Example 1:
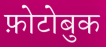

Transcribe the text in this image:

फ़ोटोबुक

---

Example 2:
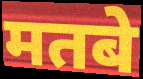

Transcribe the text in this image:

मतबे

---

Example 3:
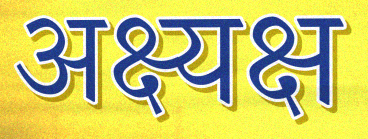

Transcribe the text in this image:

अक्ष्यक्ष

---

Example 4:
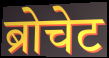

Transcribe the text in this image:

ब्रोचेट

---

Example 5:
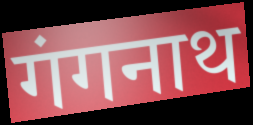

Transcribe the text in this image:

गंगनाथ